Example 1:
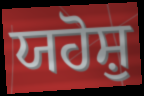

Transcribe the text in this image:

ਯਹੋਸ਼ੁ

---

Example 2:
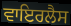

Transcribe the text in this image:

ਵਾਇਰਲੈਸ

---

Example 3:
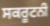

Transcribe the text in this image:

ਸਕਰੂਟਨੀ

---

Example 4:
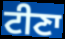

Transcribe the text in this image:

ਟੀਣਾ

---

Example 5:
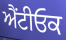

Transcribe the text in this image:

ਐਂਟੀਓਕ